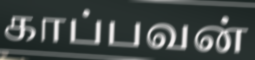
காப்பவன்